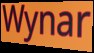
Wynar